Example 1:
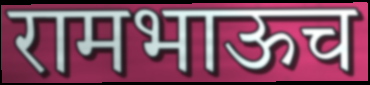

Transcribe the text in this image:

रामभाऊच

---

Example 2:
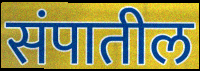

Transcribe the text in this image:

संपातील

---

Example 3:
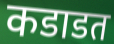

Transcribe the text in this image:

कडाडत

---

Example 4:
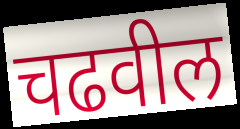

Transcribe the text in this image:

चढवील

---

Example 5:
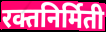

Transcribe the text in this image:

रक्तनिर्मिती